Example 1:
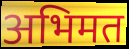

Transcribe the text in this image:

अभिमत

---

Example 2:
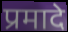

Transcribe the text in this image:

प्रमादे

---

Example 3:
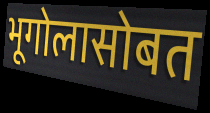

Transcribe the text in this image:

भूगोलासोबत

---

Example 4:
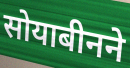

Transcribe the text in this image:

सोयाबीनने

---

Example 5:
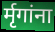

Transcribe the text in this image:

र्मृगांना